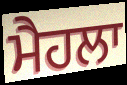
ਮੈਹਲਾ